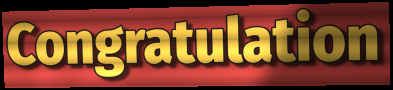
Congratulation